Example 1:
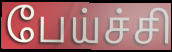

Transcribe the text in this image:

பேய்ச்சி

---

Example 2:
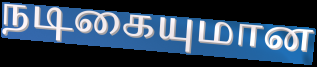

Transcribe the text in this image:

நடிகையுமான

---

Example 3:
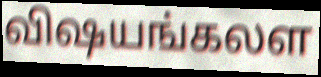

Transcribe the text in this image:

விஷயங்கலள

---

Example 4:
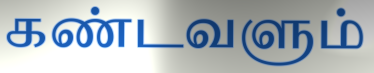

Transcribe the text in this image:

கண்டவளும்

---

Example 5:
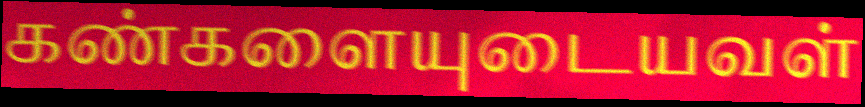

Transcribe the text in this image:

கண்களையுடையவள்